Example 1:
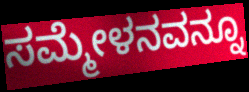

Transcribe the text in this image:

ಸಮ್ಮೇಳನವನ್ನೂ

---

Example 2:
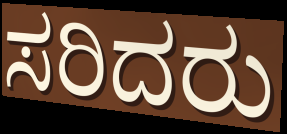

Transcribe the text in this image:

ಸರಿದರು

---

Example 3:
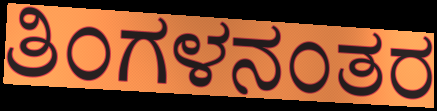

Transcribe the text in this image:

ತಿಂಗಳನಂತರ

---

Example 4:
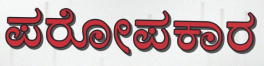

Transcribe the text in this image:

ಪರೋಪಕಾರ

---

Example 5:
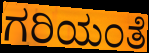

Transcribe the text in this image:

ಗರಿಯಂತೆ